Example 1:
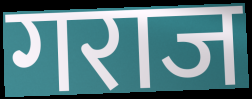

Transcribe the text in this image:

गराज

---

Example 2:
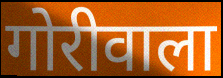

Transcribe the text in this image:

गोरीवाला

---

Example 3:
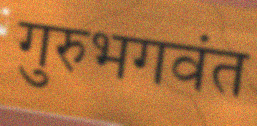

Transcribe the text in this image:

गुरुभगवंत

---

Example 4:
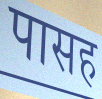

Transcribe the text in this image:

पासह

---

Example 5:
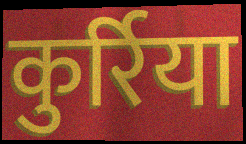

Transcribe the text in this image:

कुर्रिया